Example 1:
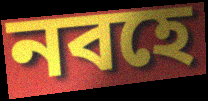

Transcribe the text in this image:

নবহে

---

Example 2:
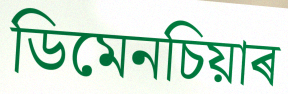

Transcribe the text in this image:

ডিমেনচিয়াৰ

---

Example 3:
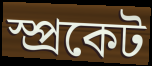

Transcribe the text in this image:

স্প্ৰকেট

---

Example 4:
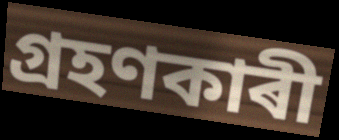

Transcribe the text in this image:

গ্ৰহণকাৰী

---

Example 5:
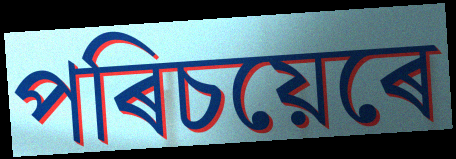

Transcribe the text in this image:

পৰিচয়েৰে